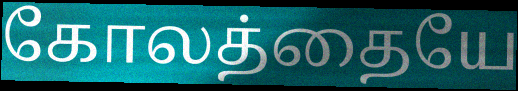
கோலத்தையே